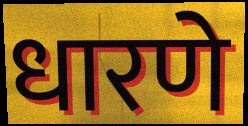
धारणे